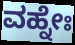
ವಹ್ನೇಃ